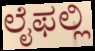
ಲೈಫಲ್ಲಿ